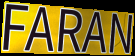
FARAN